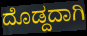
ದೊಡ್ದದಾಗಿ